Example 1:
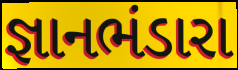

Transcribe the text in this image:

જ્ઞાનભંડારા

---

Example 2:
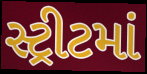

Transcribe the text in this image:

સ્ટ્રીટમાં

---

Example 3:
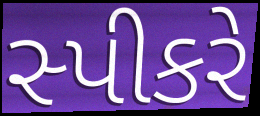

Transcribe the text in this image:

સ્પીકરે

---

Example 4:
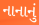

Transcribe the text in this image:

નાનાનું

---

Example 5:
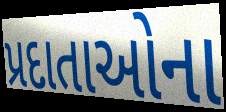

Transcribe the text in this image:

પ્રદાતાઓના